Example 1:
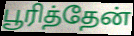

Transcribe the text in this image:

பூரித்தேன்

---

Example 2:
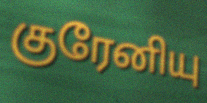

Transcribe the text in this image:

குரேனியு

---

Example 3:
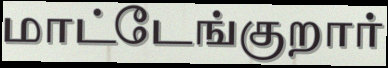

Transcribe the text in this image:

மாட்டேங்குறார்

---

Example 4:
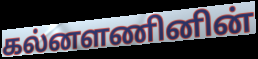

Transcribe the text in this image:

கல்னளணினின்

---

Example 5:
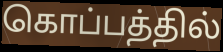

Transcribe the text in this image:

கொப்பத்தில்